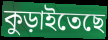
কুড়াইতেছে